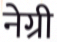
नेग्री